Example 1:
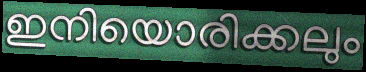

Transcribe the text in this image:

ഇനിയൊരിക്കലും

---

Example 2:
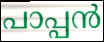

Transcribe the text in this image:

പാപ്പൻ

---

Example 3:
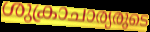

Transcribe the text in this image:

ശുക്രാചാര്യരുടെ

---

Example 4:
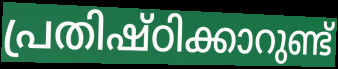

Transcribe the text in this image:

പ്രതിഷ്ഠിക്കാറുണ്ട്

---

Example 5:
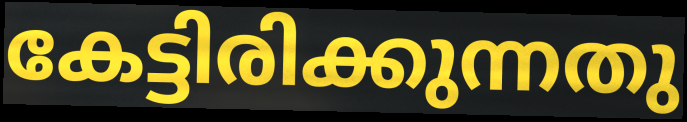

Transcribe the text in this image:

കേട്ടിരിക്കുന്നതു